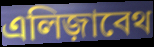
এলিজ়াবেথ